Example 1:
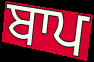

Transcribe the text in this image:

ਬਾਪ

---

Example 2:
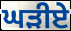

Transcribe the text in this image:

ਘੜੀਏ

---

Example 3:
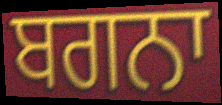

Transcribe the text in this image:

ਬਗਨਾ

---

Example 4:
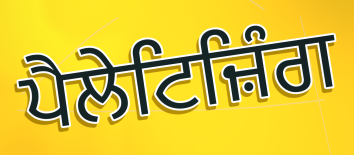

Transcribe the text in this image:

ਪੈਲੇਟਿਜ਼ਿੰਗ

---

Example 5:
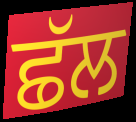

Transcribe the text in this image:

ਛੱਲ